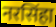
नरसिंहा